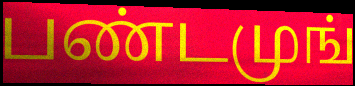
பண்டமுங்